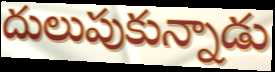
దులుపుకున్నాడు